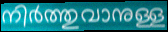
നിർത്തുവാനുള്ള